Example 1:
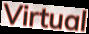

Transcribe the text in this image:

Virtual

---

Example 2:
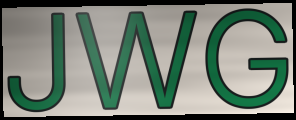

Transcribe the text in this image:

JWG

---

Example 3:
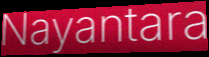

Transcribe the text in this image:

Nayantara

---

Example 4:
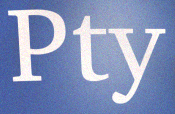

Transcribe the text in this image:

Pty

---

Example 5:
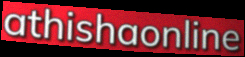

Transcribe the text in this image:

athishaonline